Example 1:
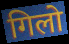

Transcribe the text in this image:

गिलो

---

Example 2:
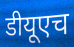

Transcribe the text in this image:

डीयूएच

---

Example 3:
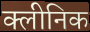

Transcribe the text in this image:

क्‍लीनिक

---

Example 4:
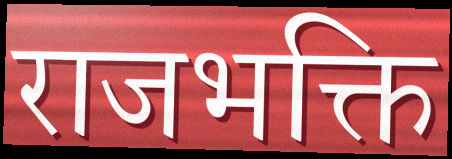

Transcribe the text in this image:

राजभक्ति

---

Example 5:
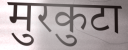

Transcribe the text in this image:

मुरकुटा